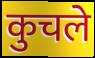
कुचले